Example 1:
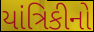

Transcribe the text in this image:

યાંત્રિકીનો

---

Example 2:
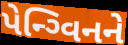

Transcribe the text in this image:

પેન્ગ્વિનને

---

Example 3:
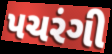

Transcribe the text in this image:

પચરંગી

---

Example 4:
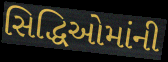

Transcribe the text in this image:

સિદ્ધિઓમાંની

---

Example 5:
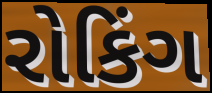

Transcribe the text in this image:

રોકિંગ